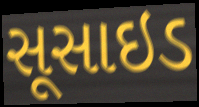
સૂસાઇડ